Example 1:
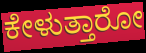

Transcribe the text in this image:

ಕೇಳುತ್ತಾರೋ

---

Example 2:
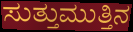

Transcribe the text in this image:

ಸುತ್ತುಮುತ್ತಿನ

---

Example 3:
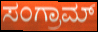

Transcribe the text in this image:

ಸಂಗ್ರಾಮ್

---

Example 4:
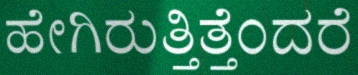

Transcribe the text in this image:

ಹೇಗಿರುತ್ತಿತ್ತೆಂದರೆ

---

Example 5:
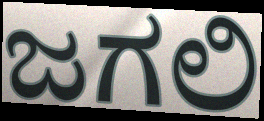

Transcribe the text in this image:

ಜಗಲಿ